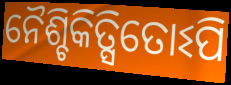
ନୈଶ୍ଚିକିତ୍ସିତୋଽପି